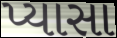
પ્યાસા